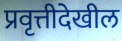
प्रवृत्तीदेखील